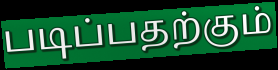
படிப்பதற்கும்